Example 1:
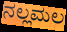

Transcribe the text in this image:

ನಲ್ಲಮಲ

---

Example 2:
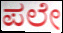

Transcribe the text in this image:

ಪಲೇ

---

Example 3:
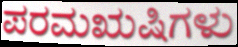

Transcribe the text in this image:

ಪರಮಋಷಿಗಳು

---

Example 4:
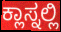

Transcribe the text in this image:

ಕ್ಲಾಸ್ನಲ್ಲಿ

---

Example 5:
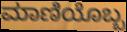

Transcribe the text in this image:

ಮಾಣಿಯೊಬ್ಬ